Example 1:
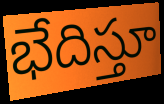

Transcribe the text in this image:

భేదిస్తూ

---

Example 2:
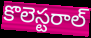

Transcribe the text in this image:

కొలెస్టరాల్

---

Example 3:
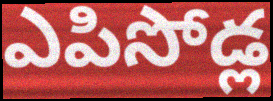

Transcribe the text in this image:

ఎపిసోడ్ల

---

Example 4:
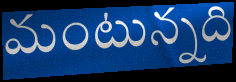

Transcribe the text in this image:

మంటున్నది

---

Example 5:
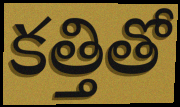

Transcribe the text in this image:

కత్తితో